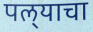
पल्याचा